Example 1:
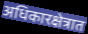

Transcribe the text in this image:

अधिकारक्षेत्रात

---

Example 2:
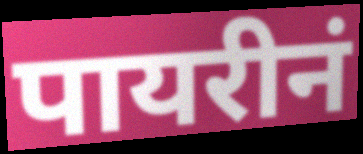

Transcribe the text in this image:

पायरीनं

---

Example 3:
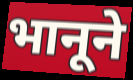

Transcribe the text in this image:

भानूने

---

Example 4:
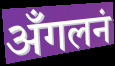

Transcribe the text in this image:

अँगलनं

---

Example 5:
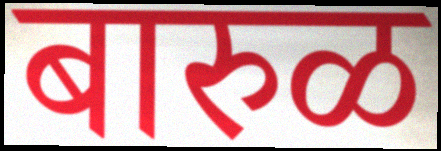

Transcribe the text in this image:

बारुळ